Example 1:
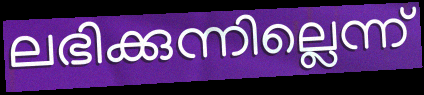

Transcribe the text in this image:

ലഭിക്കുന്നില്ലെന്ന്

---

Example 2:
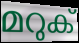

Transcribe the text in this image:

മറുക്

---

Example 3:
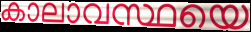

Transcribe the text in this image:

കാലാവസ്ഥയെ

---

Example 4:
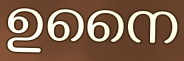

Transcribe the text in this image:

ഉനൈ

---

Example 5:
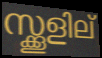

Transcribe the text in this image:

സ്ക്കൂളില്